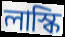
লাস্কি